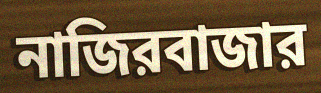
নাজিরবাজার